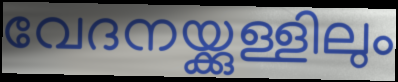
വേദനയ്ക്കുള്ളിലും